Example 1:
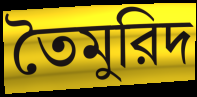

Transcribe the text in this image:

তৈমুরিদ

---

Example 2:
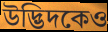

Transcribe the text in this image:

উদ্ভিদকেও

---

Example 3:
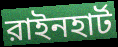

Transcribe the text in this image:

রাইনহার্ট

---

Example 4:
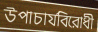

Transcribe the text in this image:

উপাচার্যবিরোধী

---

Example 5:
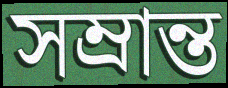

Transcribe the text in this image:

সম্রান্ত